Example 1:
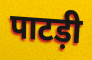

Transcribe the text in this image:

पाटड़ी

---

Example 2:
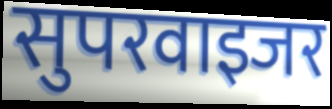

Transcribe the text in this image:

सुपरवाइजर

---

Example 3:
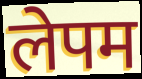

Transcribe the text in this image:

लेपम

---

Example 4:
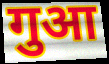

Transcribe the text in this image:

गुआ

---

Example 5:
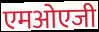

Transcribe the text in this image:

एमओएजी